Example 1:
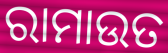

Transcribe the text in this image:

ରାମାଉତ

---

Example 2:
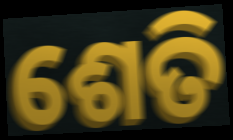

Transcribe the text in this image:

ଶେତି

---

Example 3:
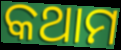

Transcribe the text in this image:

କଥାମ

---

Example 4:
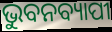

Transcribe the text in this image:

ଭୁବନବ୍ୟାପୀ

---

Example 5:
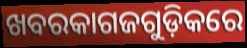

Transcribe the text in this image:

ଖବରକାଗଜଗୁଡ଼ିକରେ